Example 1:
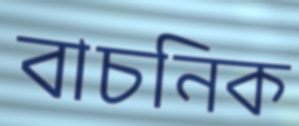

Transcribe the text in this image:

বাচনিক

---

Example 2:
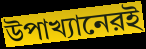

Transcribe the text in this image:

উপাখ্যানেরই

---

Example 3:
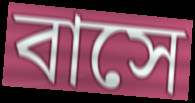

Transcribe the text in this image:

বাসে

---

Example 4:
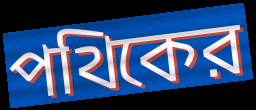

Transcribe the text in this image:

পথিকের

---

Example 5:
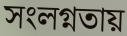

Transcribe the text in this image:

সংলগ্নতায়